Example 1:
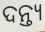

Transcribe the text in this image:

ଦନ୍ତ୍ଯ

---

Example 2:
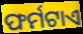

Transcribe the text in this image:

ଫର୍ମଟାଏ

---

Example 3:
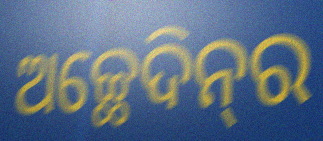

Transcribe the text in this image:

ଅଚ୍ଛେଦିନ୍‌ର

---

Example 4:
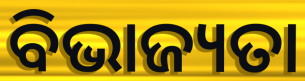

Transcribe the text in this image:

ବିଭାଜ୍ୟତା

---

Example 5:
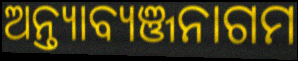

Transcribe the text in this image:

ଅନ୍ତ୍ୟାବ୍ୟଞ୍ଜନାଗମ